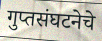
गुप्तसंघटनेचे